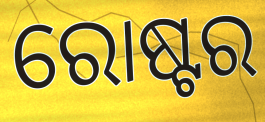
ରୋଷ୍ଟର